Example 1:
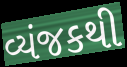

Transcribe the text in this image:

વ્યંજકથી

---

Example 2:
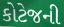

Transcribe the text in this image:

કોટેજની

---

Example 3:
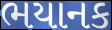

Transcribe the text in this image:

ભયાનક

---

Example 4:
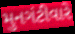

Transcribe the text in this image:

મુનગંટીવારે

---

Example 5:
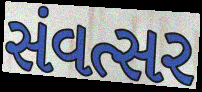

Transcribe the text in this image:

સંવત્સર